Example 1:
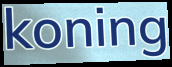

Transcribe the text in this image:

koning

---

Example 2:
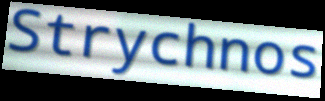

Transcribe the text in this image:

Strychnos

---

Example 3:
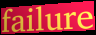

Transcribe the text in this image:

failure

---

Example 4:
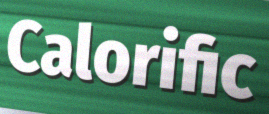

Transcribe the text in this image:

Calorific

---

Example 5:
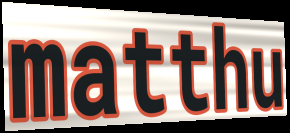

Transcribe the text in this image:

matthu